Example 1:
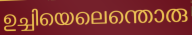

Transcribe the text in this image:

ഉച്ചിയെലെന്തൊരു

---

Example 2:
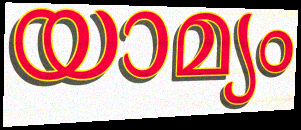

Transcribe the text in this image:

യാമ്യം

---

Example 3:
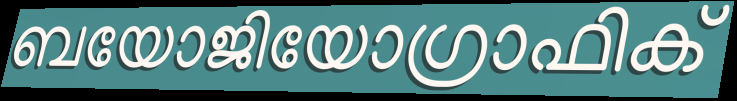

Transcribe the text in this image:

ബയോജിയോഗ്രാഫിക്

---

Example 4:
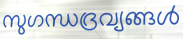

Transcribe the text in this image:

സുഗന്ധദ്രവ്യങ്ങൾ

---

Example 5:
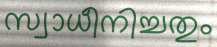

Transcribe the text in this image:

സ്വാധീനിച്ചതും